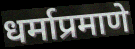
धर्माप्रमाणे